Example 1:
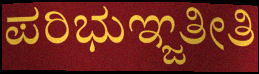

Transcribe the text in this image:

ಪರಿಭುಞ್ಜತೀತಿ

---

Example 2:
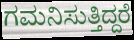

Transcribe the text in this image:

ಗಮನಿಸುತ್ತಿದ್ದರೆ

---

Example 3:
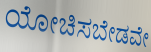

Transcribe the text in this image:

ಯೋಚಿಸಬೇಡವೇ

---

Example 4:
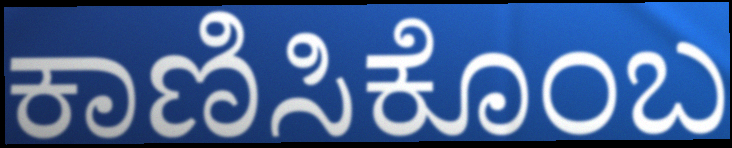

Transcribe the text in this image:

ಕಾಣಿಸಿಕೊಂಬ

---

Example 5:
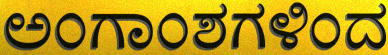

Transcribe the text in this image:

ಅಂಗಾಂಶಗಳಿಂದ